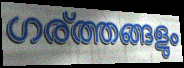
ഗര്ത്തങ്ങളും